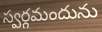
స్వర్గమందును